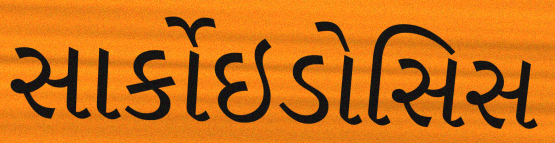
સાર્કોઇડોસિસ